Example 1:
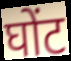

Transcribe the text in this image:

घोंट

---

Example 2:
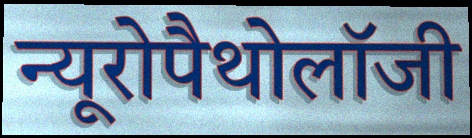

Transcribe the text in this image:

न्यूरोपैथोलॉजी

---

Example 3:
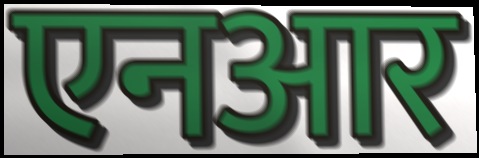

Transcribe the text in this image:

एनआर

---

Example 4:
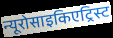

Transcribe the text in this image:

न्यूरोसाइकिएट्रिस्ट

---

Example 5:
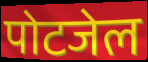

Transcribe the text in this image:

पोटजेल